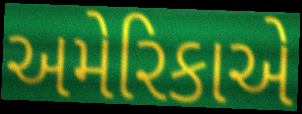
અમેરિકાએ